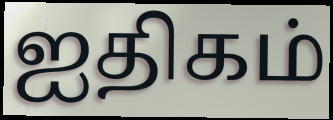
ஐதிகம்